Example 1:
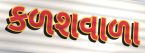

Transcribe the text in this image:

કળશવાળા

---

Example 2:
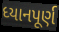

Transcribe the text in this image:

ધ્યાનપૂર્ણ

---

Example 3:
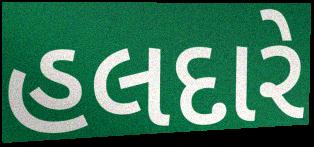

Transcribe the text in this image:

હલદારે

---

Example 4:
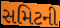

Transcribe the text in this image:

સમિટની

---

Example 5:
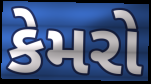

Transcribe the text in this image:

કેમરો